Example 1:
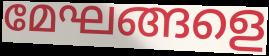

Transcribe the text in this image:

മേഘങ്ങളെ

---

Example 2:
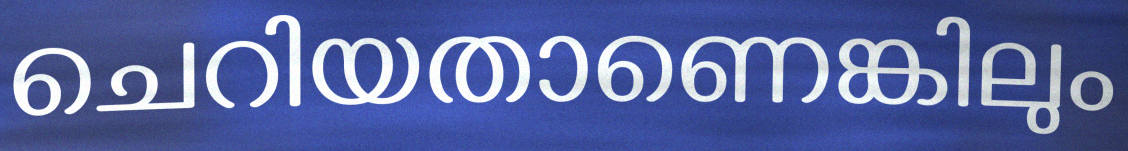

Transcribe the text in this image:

ചെറിയതാണെങ്കിലും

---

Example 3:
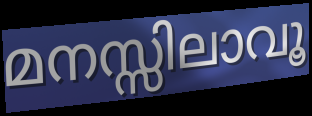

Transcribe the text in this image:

മനസ്സിലാവൂ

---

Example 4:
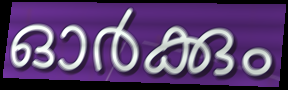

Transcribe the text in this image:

ഓർക്കും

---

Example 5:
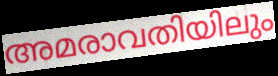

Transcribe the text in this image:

അമരാവതിയിലും